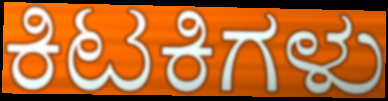
ಕಿಟಕಿಗಳು